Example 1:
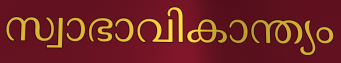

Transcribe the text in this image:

സ്വാഭാവികാന്ത്യം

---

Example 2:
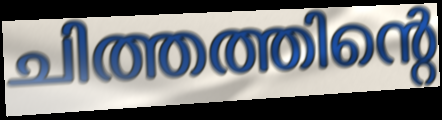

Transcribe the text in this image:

ചിത്തത്തിന്റെ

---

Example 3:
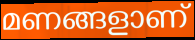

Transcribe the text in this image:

മണങ്ങളാണ്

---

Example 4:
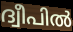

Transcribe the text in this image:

ദ്വീപിൽ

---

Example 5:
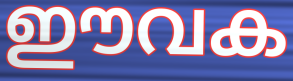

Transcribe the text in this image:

ഈവക